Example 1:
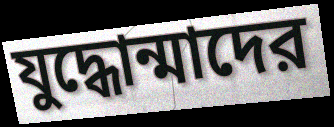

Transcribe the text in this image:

যুদ্ধোন্মাদের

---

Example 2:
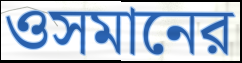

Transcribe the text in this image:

ওসমানের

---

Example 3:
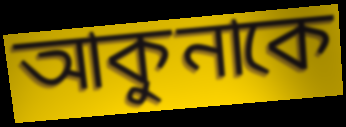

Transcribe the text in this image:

আকুনাকে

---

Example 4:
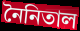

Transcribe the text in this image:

নৈনিতাল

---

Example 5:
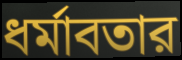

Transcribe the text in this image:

ধর্মাবতার